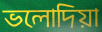
ভলোদিয়া